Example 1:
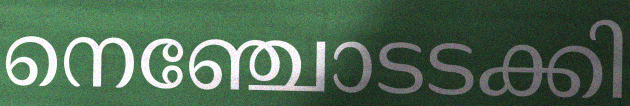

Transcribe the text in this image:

നെഞ്ചോടടക്കി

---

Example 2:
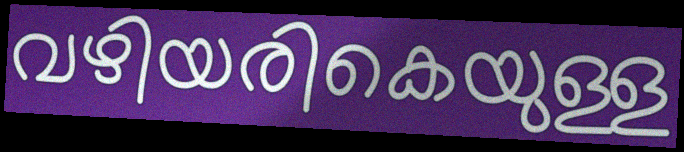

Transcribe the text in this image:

വഴിയരികെയുള്ള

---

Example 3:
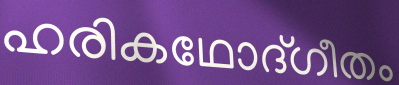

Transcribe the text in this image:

ഹരികഥോദ്ഗീതം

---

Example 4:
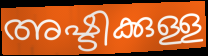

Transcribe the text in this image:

അഷ്ടിക്കുള്ള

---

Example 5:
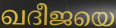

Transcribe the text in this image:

ഖദീജയെ